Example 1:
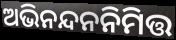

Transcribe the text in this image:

ଅଭିନନ୍ଦନନିମିତ୍ତ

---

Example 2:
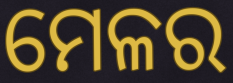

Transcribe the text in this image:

ମେଳର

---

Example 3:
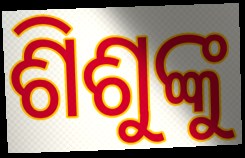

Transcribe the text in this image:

ଶିଶୁଙ୍କୁ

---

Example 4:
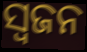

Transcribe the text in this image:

ସ୍ୱଜନ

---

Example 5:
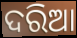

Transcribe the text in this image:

ଦରିଆ